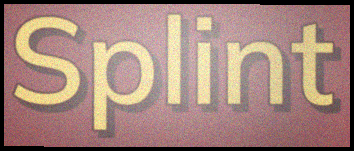
Splint